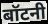
बॉटनी